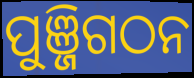
ପୁଞ୍ଜିଗଠନ